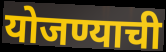
योजण्याची